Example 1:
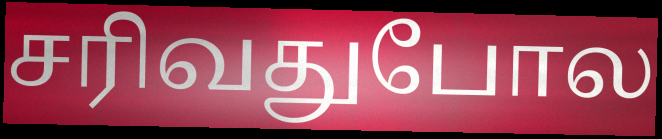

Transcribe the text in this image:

சரிவதுபோல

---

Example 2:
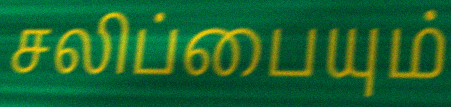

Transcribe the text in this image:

சலிப்பையும்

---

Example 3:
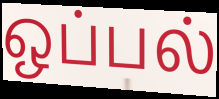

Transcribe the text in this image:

ஒப்பல்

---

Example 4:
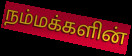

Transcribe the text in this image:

நம்மக்களின்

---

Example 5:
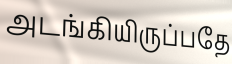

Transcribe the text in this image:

அடங்கியிருப்பதே